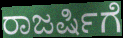
ರಾಜರ್ಷಿಗೆ